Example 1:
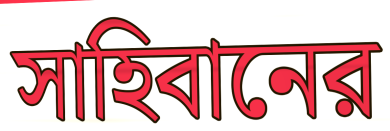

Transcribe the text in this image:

সাহিবানের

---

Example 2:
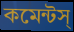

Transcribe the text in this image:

কমেন্টস্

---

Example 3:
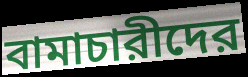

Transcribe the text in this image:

বামাচারীদের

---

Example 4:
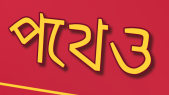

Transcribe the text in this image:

পথেও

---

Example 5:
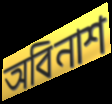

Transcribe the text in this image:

অবিনাশ